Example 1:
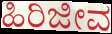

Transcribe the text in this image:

ಹಿರಿಜೀವ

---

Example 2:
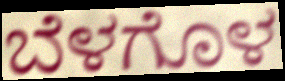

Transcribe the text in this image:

ಬೆಳಗೊಳ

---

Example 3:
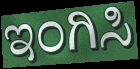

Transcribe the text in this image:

ಇಂಗಿಸಿ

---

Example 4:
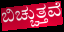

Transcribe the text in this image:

ಬಿಚ್ಚುತ್ತವೆ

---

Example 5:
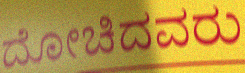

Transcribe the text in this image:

ದೋಚಿದವರು